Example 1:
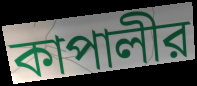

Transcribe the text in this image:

কাপালীর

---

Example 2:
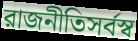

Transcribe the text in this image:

রাজনীতিসর্বস্ব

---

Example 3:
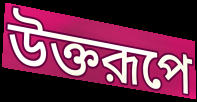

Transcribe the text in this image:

উক্তরূপে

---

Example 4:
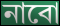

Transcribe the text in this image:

নাবো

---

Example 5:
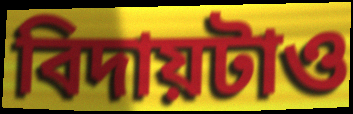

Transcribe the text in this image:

বিদায়টাও